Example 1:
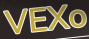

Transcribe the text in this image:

VEXo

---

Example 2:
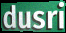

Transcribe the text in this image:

dusri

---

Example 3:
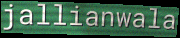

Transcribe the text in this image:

jallianwala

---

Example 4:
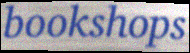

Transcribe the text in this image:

bookshops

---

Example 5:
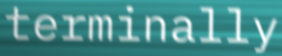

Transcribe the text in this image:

terminally